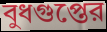
বুধগুপ্তের